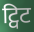
ट्विट